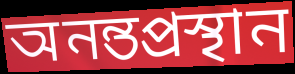
অনন্তপ্রস্থান